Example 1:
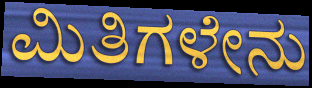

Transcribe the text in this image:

ಮಿತಿಗಳೇನು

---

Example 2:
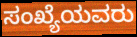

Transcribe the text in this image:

ಸಂಖ್ಯೆಯವರು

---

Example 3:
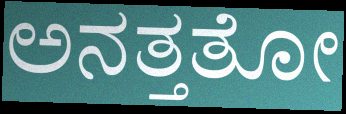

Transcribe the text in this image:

ಅನತ್ತತೋ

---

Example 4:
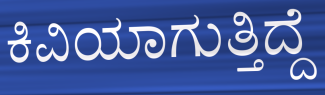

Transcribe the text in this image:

ಕಿವಿಯಾಗುತ್ತಿದ್ದೆ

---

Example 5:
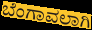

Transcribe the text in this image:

ಬೆಂಗಾವಲಾಗಿ